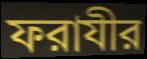
ফরাযীর